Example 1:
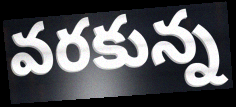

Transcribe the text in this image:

వరకున్న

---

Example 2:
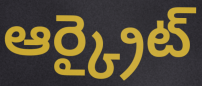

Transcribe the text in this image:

ఆర్క్రైట్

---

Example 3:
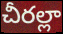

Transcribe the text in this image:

చీరల్లా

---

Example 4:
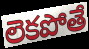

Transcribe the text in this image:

లెకపోతే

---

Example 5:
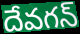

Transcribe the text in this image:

దేవగన్